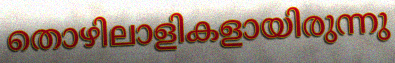
തൊഴിലാളികളായിരുന്നു